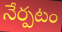
నేర్పటం